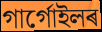
গাৰ্গোইলৰ